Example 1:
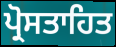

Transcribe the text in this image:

ਪ੍ਰੋਸਤਾਹਿਤ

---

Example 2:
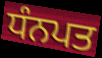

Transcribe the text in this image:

ਧੰਨਪਤ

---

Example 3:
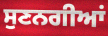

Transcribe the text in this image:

ਸੁਣਨਗੀਆਂ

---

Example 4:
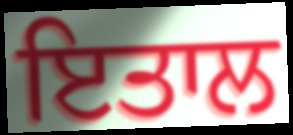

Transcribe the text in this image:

ਇਤਾਲ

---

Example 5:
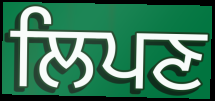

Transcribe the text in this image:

ਲਿਪਣ